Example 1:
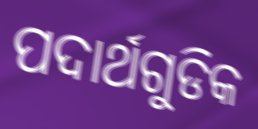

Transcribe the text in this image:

ପଦାର୍ଥଗୁଡିକ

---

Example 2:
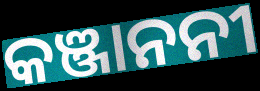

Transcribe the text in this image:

କଞ୍ଜାନନୀ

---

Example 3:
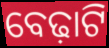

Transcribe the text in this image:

ବେଢ଼ାଟି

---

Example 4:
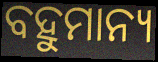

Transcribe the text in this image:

ବହୁମାନ୍ୟ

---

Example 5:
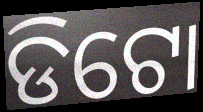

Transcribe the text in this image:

ଡିଟୋ